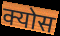
क्योस